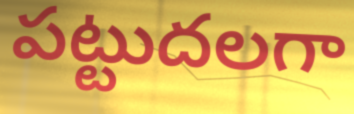
పట్టుదలగా